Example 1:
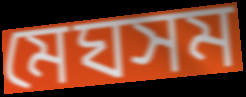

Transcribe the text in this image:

মেঘসম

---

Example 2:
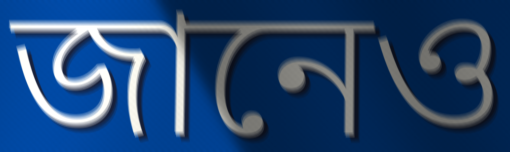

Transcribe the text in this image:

জানেও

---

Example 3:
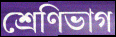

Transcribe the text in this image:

শ্রেণিভাগ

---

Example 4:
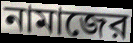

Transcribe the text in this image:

নামাজের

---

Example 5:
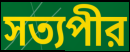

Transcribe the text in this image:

সত্যপীর